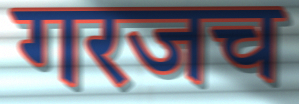
गरजच